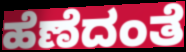
ಹೆಣೆದಂತೆ